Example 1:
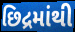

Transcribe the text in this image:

છિદ્રમાંથી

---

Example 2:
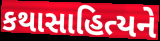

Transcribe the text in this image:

કથાસાહિત્યને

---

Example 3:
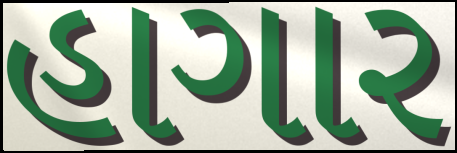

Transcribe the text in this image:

હાગાર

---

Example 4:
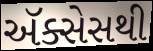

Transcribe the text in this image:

ઍક્સેસથી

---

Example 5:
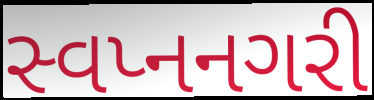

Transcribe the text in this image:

સ્વપ્નનગરી